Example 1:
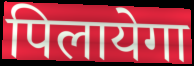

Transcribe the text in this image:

पिलायेगा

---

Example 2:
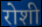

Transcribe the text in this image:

रोशी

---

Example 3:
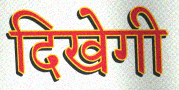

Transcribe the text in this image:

दिखेगी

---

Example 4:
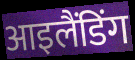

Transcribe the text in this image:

आइलैंडिंग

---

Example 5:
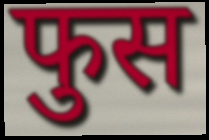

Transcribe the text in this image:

फुस